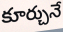
కూర్చునే